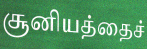
சூனியத்தைச்